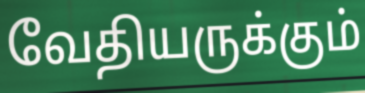
வேதியருக்கும்